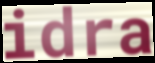
idra